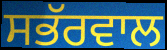
ਸਭੱਰਵਾਲ